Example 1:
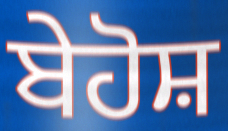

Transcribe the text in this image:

ਬੇਹੋਸ਼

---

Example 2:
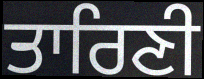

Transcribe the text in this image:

ਤਾਰਿਣੀ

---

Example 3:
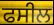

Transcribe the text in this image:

ਫਸੀਲ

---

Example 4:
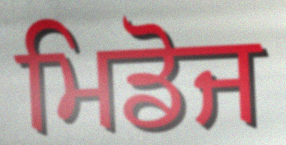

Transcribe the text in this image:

ਮਿਡੋਜ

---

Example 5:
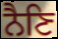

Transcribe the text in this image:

ਨੈਣਿ